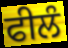
ਫੀਲੰ